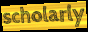
scholarly